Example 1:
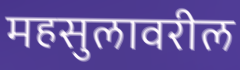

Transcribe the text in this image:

महसुलावरील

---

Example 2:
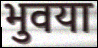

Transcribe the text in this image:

भुवया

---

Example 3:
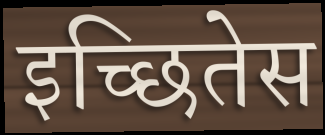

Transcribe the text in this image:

इच्छितेस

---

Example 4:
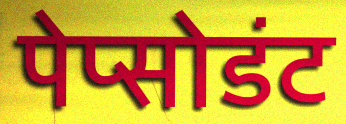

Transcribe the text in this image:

पेप्सोडंट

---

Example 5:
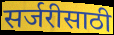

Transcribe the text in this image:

सर्जरीसाठी